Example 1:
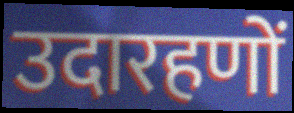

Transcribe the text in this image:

उदारहणों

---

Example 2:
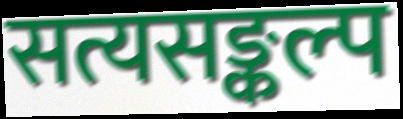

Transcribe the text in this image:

सत्यसङ्कल्प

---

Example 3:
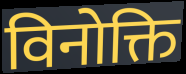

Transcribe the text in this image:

विनोक्ति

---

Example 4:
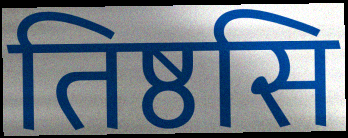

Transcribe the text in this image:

तिष्ठसि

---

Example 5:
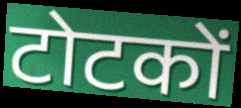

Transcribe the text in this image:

टोटकों